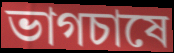
ভাগচাষে